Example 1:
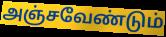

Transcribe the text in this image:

அஞ்சவேண்டும்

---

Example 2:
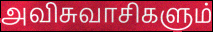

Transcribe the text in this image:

அவிசுவாசிகளும்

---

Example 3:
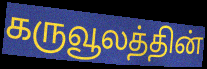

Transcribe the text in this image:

கருவூலத்தின்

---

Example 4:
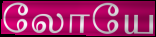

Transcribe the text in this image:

லோயே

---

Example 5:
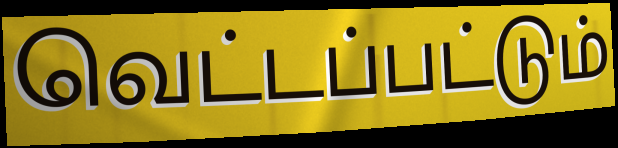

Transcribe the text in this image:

வெட்டப்பட்டும்